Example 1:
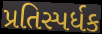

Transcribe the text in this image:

પ્રતિસ્પર્ધક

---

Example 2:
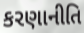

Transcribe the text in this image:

કરણાનીતિ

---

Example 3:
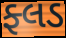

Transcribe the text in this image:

ફ્લડ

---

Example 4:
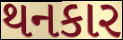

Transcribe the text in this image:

થનકાર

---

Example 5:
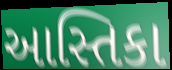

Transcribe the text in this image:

આસ્તિકા